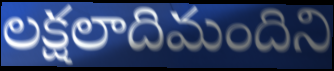
లక్షలాదిమందిని